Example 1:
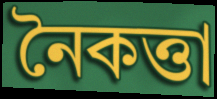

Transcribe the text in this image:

নৈকত্তা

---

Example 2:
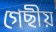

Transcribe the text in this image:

গেছীয়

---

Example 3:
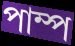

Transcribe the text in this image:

পাম্প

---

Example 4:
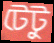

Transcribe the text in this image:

টেটু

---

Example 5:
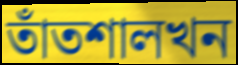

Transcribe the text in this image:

তাঁতশালখন